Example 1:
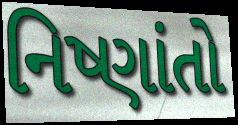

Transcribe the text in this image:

નિષ્ણાંતો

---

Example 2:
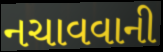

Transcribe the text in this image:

નચાવવાની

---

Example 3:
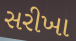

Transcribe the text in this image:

સરીખા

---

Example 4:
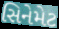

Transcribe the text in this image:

સિનેમેટ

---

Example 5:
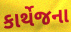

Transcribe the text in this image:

કાર્થેજના